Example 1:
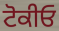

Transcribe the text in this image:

ਟੋਕੀਓ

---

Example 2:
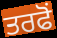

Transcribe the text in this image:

ਤਰਫੋਂ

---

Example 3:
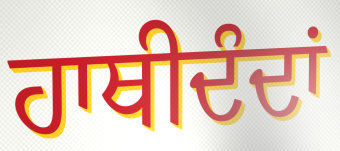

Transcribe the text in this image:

ਹਾਥੀਦੰਦਾਂ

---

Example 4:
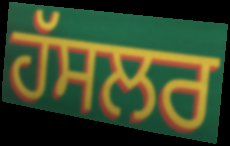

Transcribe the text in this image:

ਹੱਸਲਰ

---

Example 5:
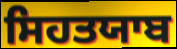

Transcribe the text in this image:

ਸਿਹਤਯਾਬ